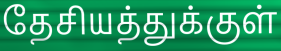
தேசியத்துக்குள்